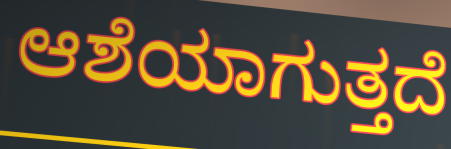
ಆಶೆಯಾಗುತ್ತದೆ